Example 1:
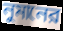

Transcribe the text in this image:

নুমানের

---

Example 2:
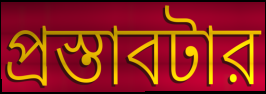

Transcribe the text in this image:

প্রস্তাবটার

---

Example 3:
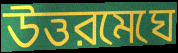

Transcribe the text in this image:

উত্তরমেঘে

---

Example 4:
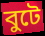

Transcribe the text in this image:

বুটে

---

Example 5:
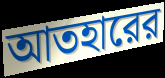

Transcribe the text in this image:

আতহারের